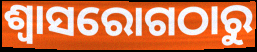
ଶ୍ୱାସରୋଗଠାରୁ